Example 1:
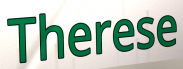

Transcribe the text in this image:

Therese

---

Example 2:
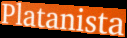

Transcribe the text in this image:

Platanista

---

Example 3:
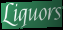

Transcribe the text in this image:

Liquors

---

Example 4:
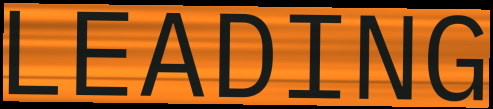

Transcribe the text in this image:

LEADING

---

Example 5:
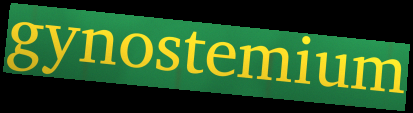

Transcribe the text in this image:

gynostemium